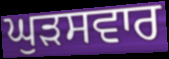
ਘੁੜਸਵਾਰ